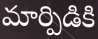
మార్పిడికి